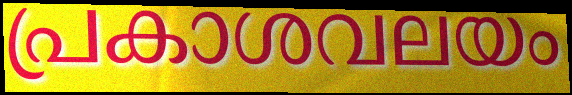
പ്രകാശവലയം